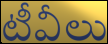
టీవీలు